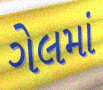
ગેલમાં